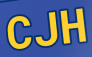
CJH